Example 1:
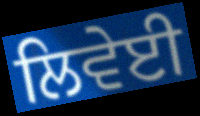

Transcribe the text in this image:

ਲਿਵੇਈ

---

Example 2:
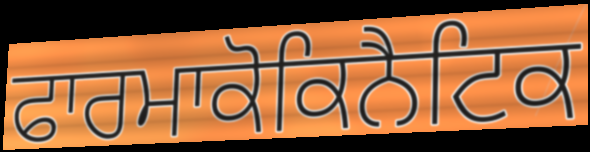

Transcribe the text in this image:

ਫਾਰਮਾਕੋਕਿਨੈਟਿਕ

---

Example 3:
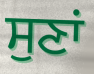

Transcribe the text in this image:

ਸੁਣਾਂ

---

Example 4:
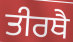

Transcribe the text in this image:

ਤੀਰਥੈ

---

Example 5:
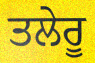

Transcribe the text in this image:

ਤਲੇਰੂ